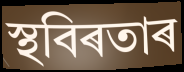
স্থবিৰতাৰ